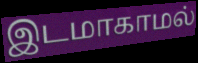
இடமாகாமல்